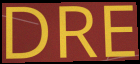
DRE